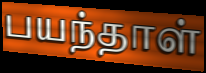
பயந்தாள்